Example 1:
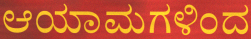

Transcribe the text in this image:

ಆಯಾಮಗಳಿಂದ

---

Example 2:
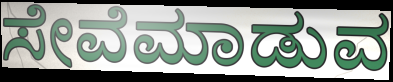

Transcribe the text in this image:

ಸೇವೆಮಾಡುವ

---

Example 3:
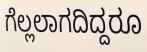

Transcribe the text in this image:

ಗೆಲ್ಲಲಾಗದಿದ್ದರೂ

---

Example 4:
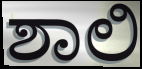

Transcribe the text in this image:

ಶಾಲಿ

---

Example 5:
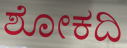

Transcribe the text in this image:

ಶೋಕದಿ